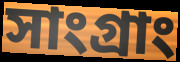
সাংগ্রাং